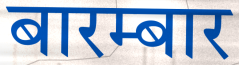
बारम्‍बार